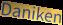
Daniken